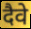
दैवे